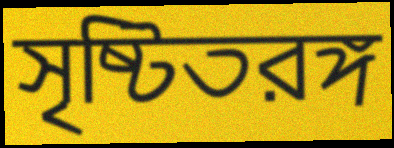
সৃষ্টিতরঙ্গ